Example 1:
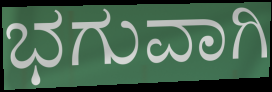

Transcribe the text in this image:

ಭಗುವಾಗಿ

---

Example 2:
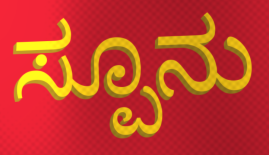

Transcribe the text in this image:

ಸ್ಪೂನು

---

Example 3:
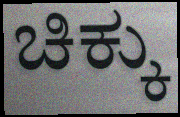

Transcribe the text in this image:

ಚಿಕ್ಕು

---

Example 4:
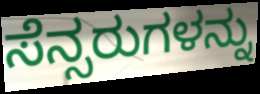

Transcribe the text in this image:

ಸೆನ್ಸರುಗಳನ್ನು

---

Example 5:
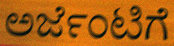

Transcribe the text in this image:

ಅರ್ಜೆಂಟಿಗೆ